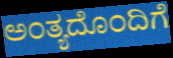
ಅಂತ್ಯದೊಂದಿಗೆ